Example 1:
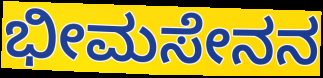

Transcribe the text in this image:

ಭೀಮಸೇನನ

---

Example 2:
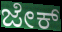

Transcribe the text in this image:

ಜೇಕ್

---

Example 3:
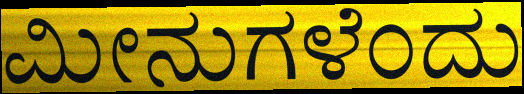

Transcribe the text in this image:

ಮೀನುಗಳೆಂದು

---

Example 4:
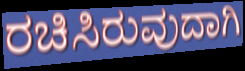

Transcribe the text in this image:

ರಚಿಸಿರುವುದಾಗಿ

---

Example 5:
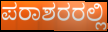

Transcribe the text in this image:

ಪರಾಶರರಲ್ಲಿ